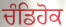
ਚੰਡਿਹੋਕ